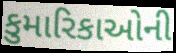
કુમારિકાઓની